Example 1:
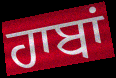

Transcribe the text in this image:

ਹਾਬਾਂ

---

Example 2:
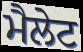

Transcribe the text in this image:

ਮੈਲੇਟ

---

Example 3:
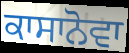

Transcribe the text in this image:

ਕਾਸਾਨੋਵਾ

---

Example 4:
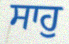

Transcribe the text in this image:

ਸਾਹੁ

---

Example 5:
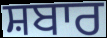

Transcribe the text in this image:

ਸ਼ਬਾਰ